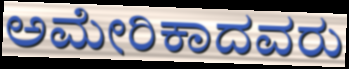
ಅಮೇರಿಕಾದವರು